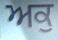
ਅਕੁ